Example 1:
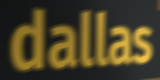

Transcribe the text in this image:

dallas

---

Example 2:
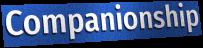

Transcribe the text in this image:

Companionship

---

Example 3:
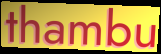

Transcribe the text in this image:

thambu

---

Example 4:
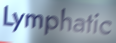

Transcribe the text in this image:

Lymphatic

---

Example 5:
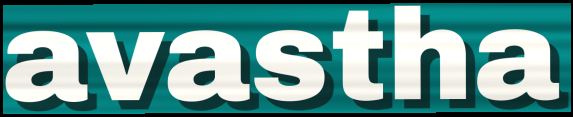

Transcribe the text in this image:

avastha